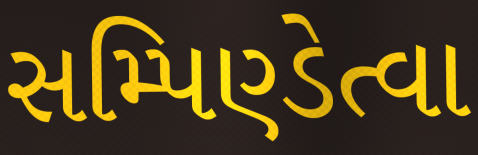
સમ્પિણ્ડેત્વા